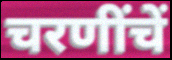
चरणींचें